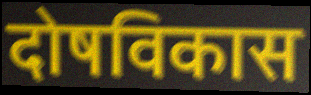
दोषविकास